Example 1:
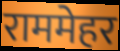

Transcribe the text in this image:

राममेहर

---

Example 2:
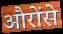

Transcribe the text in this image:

औरोंसे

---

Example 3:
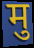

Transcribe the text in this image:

मु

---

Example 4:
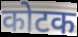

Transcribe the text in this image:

कोटक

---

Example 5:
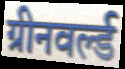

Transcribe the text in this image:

ग्रीनवर्ल्ड